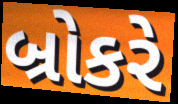
બ્રોકરે